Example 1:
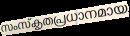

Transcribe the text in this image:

സംസ്‌കൃതപ്രധാനമായ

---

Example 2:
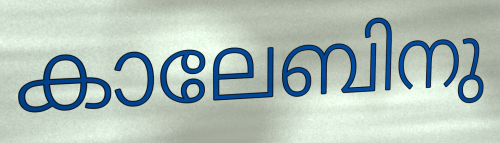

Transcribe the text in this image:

കാലേബിനു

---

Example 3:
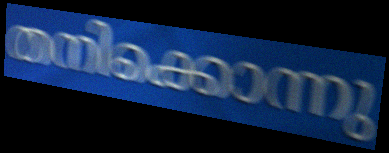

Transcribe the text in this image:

തനിക്കൊന്നു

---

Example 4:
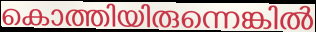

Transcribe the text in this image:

കൊത്തിയിരുന്നെങ്കിൽ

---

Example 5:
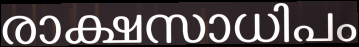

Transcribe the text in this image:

രാക്ഷസാധിപം